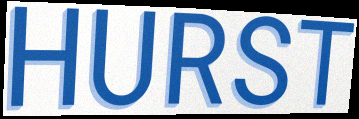
HURST